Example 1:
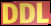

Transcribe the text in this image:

DDL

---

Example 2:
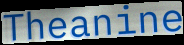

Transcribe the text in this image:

Theanine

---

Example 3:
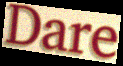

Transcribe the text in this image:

Dare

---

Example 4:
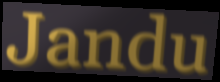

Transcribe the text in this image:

Jandu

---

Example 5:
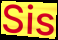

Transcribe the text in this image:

Sis